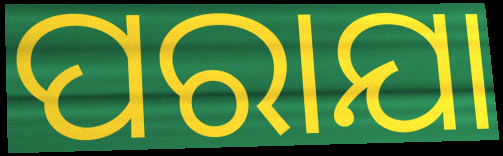
ପରାଯା